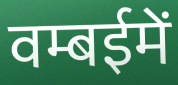
वम्बईमें